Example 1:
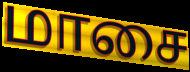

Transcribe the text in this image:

மாசை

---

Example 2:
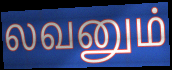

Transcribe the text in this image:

லவனும்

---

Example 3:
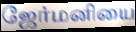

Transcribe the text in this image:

ஜேர்மனியை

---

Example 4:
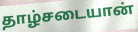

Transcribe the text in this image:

தாழ்சடையான்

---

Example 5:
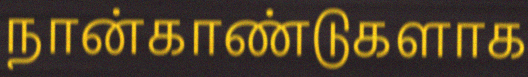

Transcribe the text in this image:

நான்காண்டுகளாக